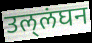
उल्लंघन